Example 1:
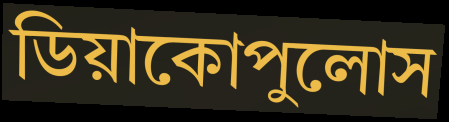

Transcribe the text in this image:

ডিয়াকোপুলোস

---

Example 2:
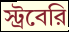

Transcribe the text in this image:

স্ট্রবেরি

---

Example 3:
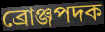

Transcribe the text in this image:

ব্রোঞ্জপদক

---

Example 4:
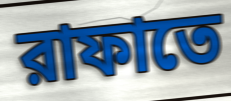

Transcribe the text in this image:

রাফাতে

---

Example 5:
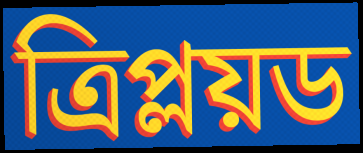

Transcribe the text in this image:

ত্রিপ্লয়ড